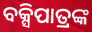
ବକ୍ସିପାତ୍ରଙ୍କ